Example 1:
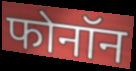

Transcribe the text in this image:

फोनॉन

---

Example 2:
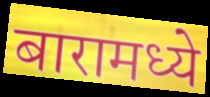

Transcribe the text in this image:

बारामध्ये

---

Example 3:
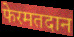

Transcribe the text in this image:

फेरमतदान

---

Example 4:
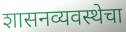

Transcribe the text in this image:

शासनव्यवस्थेचा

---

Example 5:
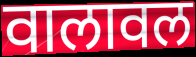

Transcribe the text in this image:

वालावल